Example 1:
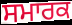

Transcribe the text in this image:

ਸਮਾਰਕ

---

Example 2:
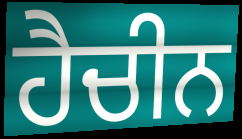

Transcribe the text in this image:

ਹੈਚੀਨ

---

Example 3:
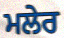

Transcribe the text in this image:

ਮਲੇਰ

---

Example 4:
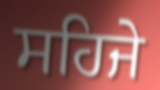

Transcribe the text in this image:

ਸਹਿਜੇ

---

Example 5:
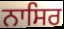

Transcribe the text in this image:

ਨਾਸਿਰ